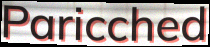
Paricched